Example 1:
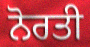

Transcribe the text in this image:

ਨੋਰਤੀ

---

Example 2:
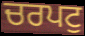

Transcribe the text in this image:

ਚਰਪਟੁ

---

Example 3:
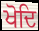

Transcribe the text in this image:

ਖੋਦਿ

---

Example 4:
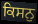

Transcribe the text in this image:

ਕਿਸਨੁ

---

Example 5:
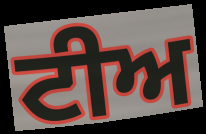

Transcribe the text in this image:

ਟੀਅ